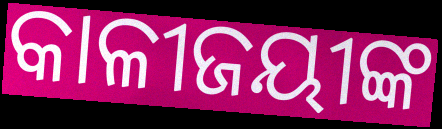
କାଳୀଜୟୀଙ୍କ